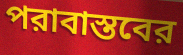
পরাবাস্তবের